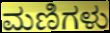
ಮಣಿಗಳು